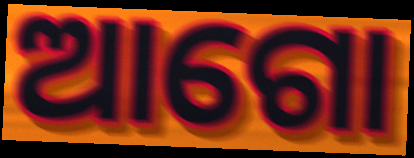
ଆଗୋ